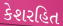
કેશરહિત